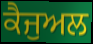
ਕੈਜੁਅਲ